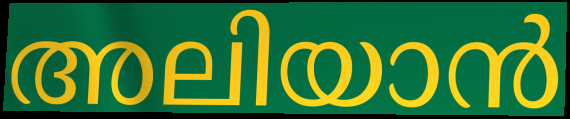
അലിയാൻ